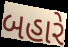
બહારે